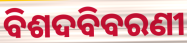
ବିଶଦବିବରଣୀ